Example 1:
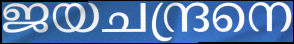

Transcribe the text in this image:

ജയചന്ദ്രനെ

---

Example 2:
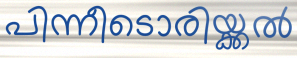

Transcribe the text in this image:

പിന്നീടൊരിയ്ക്കൽ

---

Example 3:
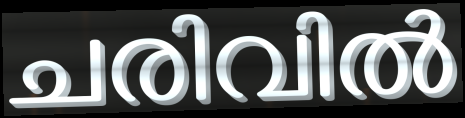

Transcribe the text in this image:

ചരിവിൽ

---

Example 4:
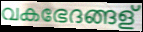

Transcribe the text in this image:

വകഭേദങ്ങള്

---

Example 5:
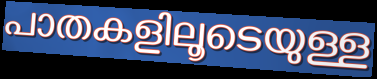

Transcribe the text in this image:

പാതകളിലൂടെയുള്ള